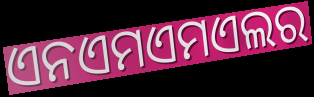
ଏନଏମଏମଏଲର